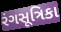
રંગસૂત્રિકા